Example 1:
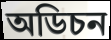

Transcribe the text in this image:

অডিচন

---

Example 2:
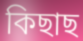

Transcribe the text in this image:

কিছাছ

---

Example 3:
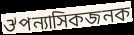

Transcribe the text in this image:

ঔপন্যাসিকজনক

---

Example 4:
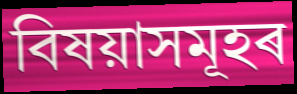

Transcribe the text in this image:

বিষয়াসমূহৰ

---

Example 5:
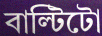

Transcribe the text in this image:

বাল্টিটো